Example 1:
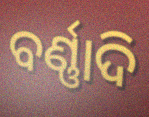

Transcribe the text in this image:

ବର୍ଣ୍ଣାଦି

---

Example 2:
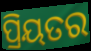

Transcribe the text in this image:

ପ୍ରିୟତର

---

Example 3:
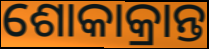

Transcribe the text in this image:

ଶୋକାକ୍ରାନ୍ତ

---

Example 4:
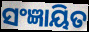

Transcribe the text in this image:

ସଂଜ୍ଞାୟିତ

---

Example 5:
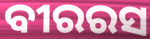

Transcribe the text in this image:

ବୀରରସ